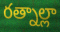
రత్నాల్లా